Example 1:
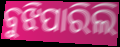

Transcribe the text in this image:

ବୁଝିପାରିଲି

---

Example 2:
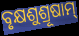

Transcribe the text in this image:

ବୃକ୍ଷଶୁଶ୍ରୂଷାମ୍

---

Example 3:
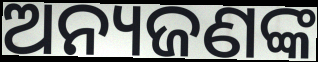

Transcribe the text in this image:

ଅନ୍ୟଜଣଙ୍କ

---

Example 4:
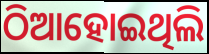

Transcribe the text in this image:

ଠିଆହୋଇଥିଲି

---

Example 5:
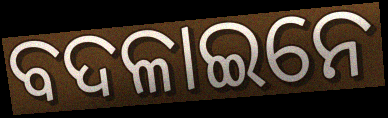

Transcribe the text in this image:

ବଦଳାଇନେ